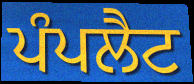
ਪੰਪਲੈਟ